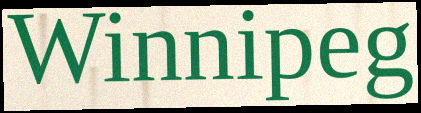
Winnipeg